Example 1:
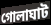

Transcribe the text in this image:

গোলাঘাট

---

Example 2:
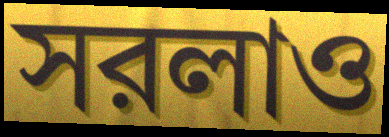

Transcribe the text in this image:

সরলাও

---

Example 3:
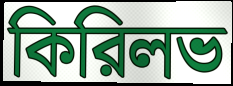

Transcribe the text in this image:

কিরিলভ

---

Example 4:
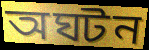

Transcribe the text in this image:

অঘটন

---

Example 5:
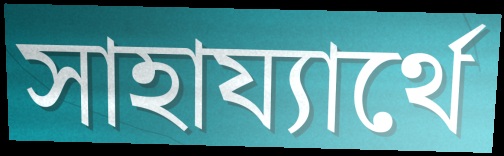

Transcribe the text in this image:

সাহায্যার্থে